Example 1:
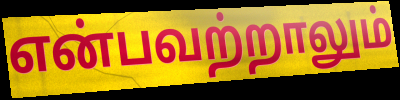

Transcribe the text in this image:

என்பவற்றாலும்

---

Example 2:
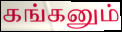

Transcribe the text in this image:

கங்கனும்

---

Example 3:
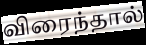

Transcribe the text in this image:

விரைந்தால்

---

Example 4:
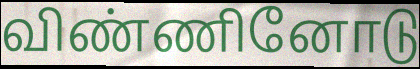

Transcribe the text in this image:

விண்ணினோடு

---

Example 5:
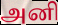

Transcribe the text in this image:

அனி